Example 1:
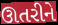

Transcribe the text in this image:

ઊતરીને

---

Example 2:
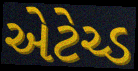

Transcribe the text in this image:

એટેચ્ડ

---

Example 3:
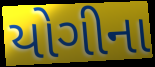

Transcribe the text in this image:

યોગીના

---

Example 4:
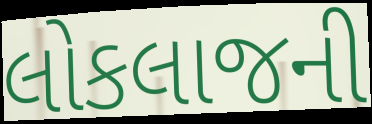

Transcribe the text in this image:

લોકલાજની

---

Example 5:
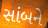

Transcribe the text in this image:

સાંબને